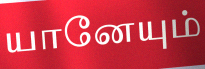
யானேயும்